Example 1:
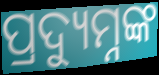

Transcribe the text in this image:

ପ୍ରଦ୍ୟୁମ୍ନଙ୍କ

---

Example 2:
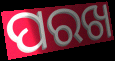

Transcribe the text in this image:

ପରଖ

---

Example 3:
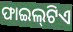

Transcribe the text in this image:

ଫାଇଲ୍‌ଟିଏ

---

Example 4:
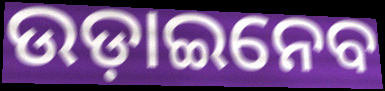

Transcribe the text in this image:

ଉଡ଼ାଇନେବ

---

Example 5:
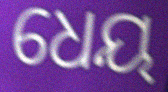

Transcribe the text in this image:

ଧେୟ